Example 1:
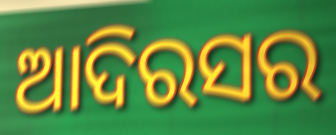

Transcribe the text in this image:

ଆଦିରସର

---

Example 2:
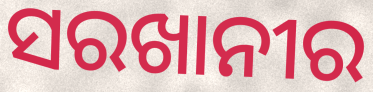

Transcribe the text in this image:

ସରଖାନୀର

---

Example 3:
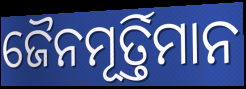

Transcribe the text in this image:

ଜୈନମୂର୍ତ୍ତିମାନ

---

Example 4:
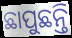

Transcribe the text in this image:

ଛାପୁଛନ୍ତି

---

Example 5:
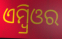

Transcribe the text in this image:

ଏମ୍ବ୍ରିଓର